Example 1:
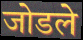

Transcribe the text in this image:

जोडले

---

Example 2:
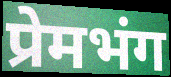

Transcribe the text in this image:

प्रेमभंग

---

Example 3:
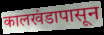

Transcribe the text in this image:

कालखंडापासून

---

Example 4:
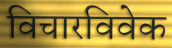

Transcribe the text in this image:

विचारविवेक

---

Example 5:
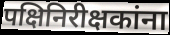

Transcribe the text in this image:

पक्षिनिरीक्षकांना